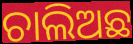
ଚାଲିଅଛ